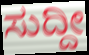
ಸುದ್ದೀ